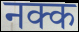
नक्क